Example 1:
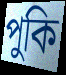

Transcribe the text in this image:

পুকি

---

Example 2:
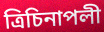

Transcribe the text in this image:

ত্রিচিনাপলী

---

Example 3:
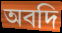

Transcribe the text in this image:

অবদি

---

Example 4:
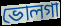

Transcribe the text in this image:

ভোলগা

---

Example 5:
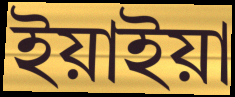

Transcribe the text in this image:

ইয়াইয়া